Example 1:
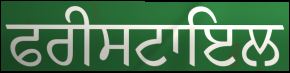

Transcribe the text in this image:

ਫਰੀਸਟਾਇਲ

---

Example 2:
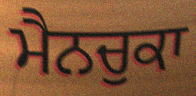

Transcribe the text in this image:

ਮੈਨਚੁਕਾ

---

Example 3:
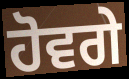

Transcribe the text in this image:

ਹੋਵਗੇ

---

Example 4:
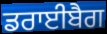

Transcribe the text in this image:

ਡਰਾਈਬੈਗ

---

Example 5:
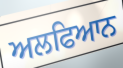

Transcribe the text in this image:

ਅਲਫਿਆਨ